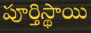
పూర్తిస్థాయి